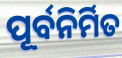
ପୂର୍ବନିର୍ମିତ